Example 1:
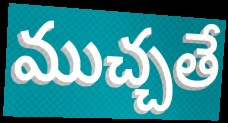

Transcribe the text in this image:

ముచ్చతే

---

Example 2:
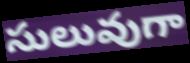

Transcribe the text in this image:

సులువుగా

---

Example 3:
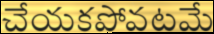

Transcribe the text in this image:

చేయకపోవటమే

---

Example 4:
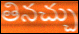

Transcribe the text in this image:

తినచ్చు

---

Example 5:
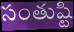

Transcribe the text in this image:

సంతుష్టి